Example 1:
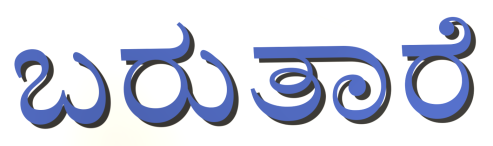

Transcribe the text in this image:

ಬರುತಾರೆ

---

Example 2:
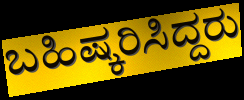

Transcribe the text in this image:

ಬಹಿಷ್ಕರಿಸಿದ್ದರು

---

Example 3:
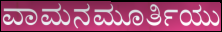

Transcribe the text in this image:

ವಾಮನಮೂರ್ತಿಯು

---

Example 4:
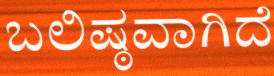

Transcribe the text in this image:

ಬಲಿಷ್ಠವಾಗಿದೆ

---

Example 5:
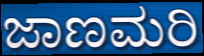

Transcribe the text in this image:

ಜಾಣಮರಿ